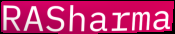
RASharma